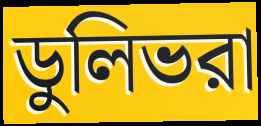
ডুলিভরা